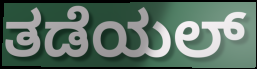
ತಡೆಯಲ್